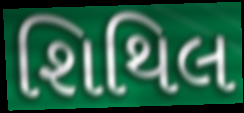
શિથિલ